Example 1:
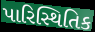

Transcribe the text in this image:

પારિસ્થિતિક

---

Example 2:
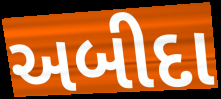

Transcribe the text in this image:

અબીદા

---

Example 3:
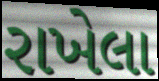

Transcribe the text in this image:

રાખેલા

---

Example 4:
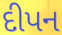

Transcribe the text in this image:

દીપન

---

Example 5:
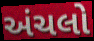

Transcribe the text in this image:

અંચલો